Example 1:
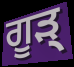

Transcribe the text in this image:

ਗੂੜ੍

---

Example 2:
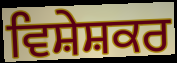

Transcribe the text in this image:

ਵਿਸ਼ੇਸ਼ਕਰ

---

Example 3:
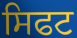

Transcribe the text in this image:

ਸਿਫਟ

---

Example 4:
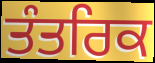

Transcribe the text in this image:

ਤੰਤਰਿਕ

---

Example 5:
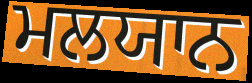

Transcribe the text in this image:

ਮਲਯਾਨ